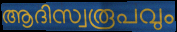
ആദിസ്വരൂപവും